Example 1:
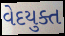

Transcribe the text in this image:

વેદયુક્ત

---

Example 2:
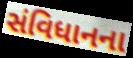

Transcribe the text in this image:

સંવિધાનના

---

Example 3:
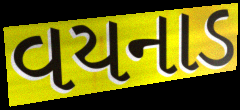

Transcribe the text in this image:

વયનાડ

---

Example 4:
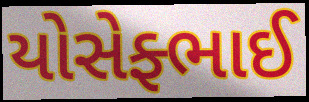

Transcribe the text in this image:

યોસેફ્ભાઈ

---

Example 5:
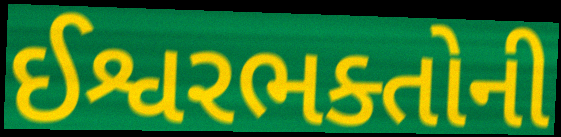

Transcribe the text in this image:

ઈશ્વરભક્તોની